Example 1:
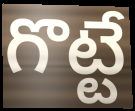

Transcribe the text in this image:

గొట్టే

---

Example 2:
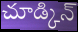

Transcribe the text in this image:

చూడ్కిన్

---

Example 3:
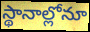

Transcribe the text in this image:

స్థానాల్లోనూ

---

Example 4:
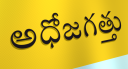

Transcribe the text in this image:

అధోజగత్తు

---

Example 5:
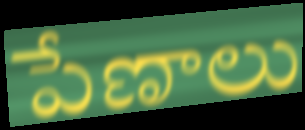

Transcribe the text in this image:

పేణాలు